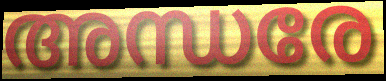
അന്ധരേ